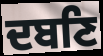
ਦਬਣਿ